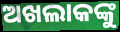
ଅଖଲାକଙ୍କୁ